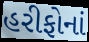
હરીફોનાં